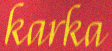
karka